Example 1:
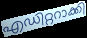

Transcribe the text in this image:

എഡിറ്ററാക്കി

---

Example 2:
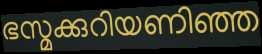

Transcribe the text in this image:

ഭസ്മക്കുറിയണിഞ്ഞ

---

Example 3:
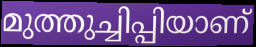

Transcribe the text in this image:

മുത്തുച്ചിപ്പിയാണ്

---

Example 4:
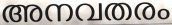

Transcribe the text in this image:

അനവതരം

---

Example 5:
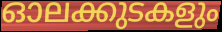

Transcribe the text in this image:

ഓലക്കുടകളും